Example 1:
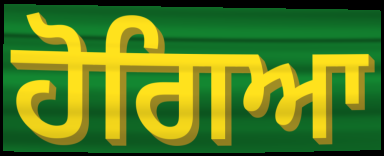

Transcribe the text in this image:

ਹੋਗਿਆ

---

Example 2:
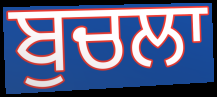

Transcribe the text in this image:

ਬੁਚਲਾ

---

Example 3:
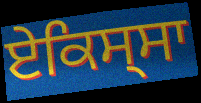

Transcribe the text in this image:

ਏਕਿਸ੍ਸਾ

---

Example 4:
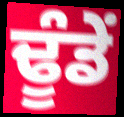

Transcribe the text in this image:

ਢੂੰਡੇਂ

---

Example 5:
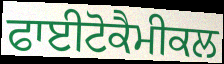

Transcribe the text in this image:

ਫਾਈਟੋਕੈਮੀਕਲ